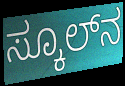
ಸ್ಕೂಲ್‌ನ